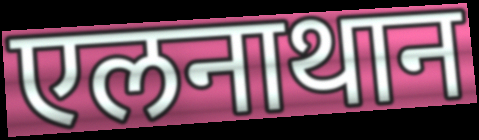
एलनाथान